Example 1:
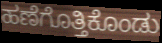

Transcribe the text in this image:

ಹಣೆಗೊತ್ತಿಕೊಂಡು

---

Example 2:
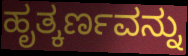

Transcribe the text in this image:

ಹೃತ್ಕರ್ಣವನ್ನು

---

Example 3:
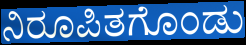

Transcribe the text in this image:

ನಿರೂಪಿತಗೊಂಡು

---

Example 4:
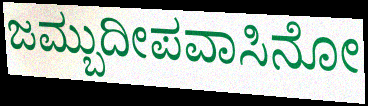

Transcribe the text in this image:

ಜಮ್ಬುದೀಪವಾಸಿನೋ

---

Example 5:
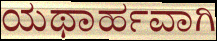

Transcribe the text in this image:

ಯಥಾರ್ಹವಾಗಿ